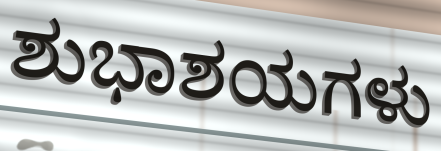
ಶುಭಾಶಯಗಳು